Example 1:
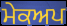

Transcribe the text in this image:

ਮੇਕਅਪ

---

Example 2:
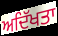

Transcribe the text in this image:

ਅਦਿੱਖਤਾ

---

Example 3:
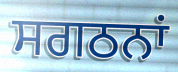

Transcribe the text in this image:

ਸਗਠਨਾਂ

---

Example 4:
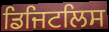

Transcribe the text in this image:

ਡਿਜਿਟਲਿਸ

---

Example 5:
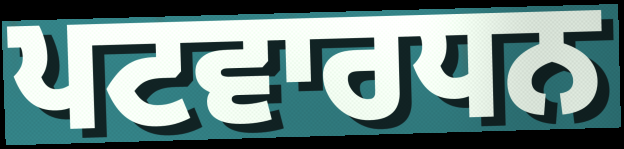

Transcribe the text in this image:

ਪਟਵਾਰਧਨ